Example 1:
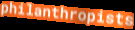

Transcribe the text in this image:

philanthropists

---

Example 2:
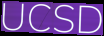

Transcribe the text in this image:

UCSD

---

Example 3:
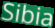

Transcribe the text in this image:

Sibia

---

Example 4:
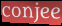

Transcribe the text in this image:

conjee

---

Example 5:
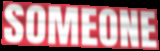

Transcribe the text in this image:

SOMEONE